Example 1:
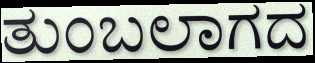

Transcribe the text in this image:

ತುಂಬಲಾಗದ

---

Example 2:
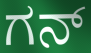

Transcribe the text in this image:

ಗನ್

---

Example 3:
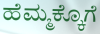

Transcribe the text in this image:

ಹೆಮ್ಮಕ್ಕೊಗೆ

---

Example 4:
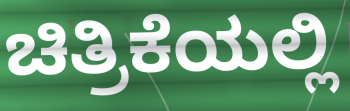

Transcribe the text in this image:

ಚಿತ್ರಿಕೆಯಲ್ಲಿ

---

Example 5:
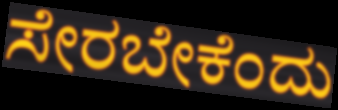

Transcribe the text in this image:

ಸೇರಬೇಕೆಂದು